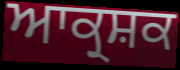
ਆਕ੍ਰਸ਼ਕ